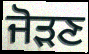
ਜੋੜਣ